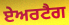
ਏਅਰਟੈਗ